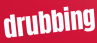
drubbing